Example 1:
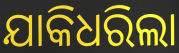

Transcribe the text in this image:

ଯାକିଧରିଲା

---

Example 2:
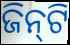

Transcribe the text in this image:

ଜିନ୍‌ଟି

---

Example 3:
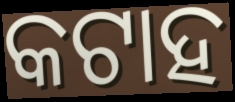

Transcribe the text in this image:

କଟାହ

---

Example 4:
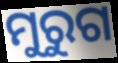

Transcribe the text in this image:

ମୁରୁଗ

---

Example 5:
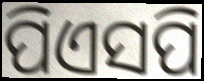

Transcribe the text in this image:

ପିଏସପି